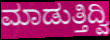
ಮಾಡುತ್ತಿದ್ವಿ